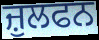
ਜ਼ੁਲਫਨ